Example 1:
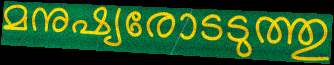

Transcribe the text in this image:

മനുഷ്യരോടടുത്തു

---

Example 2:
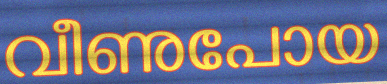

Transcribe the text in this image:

വീണുപോയ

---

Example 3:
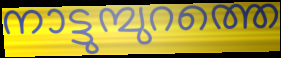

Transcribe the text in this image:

നാട്ടുമ്പുറത്തെ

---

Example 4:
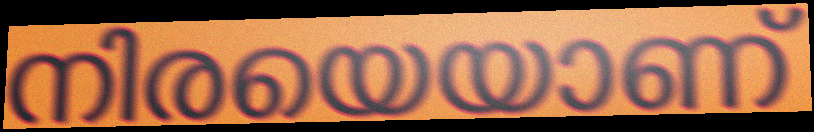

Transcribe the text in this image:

നിരയെയാണ്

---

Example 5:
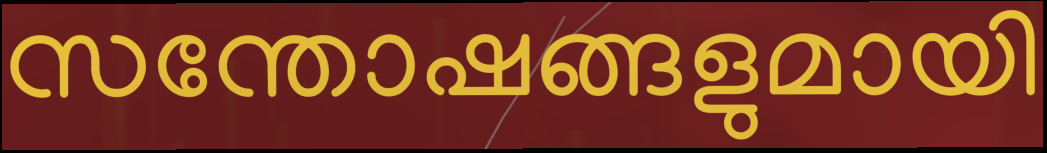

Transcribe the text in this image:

സന്തോഷങ്ങളുമായി